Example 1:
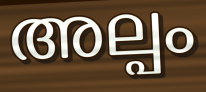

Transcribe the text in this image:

അല്പം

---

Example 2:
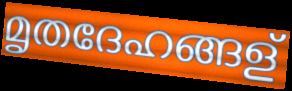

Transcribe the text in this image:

മൃതദേഹങ്ങള്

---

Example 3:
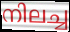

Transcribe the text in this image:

നിലച്ച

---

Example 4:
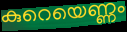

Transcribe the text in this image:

കുറെയെണ്ണം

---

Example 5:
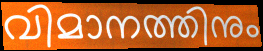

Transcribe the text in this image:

വിമാനത്തിനും